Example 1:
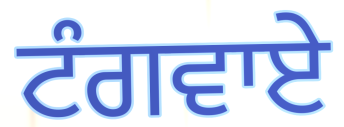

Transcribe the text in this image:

ਟੰਗਵਾਏ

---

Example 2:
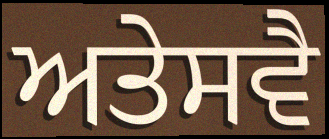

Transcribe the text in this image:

ਅਤੇਸਵੈ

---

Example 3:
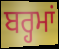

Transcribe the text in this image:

ਬਰ੍ਹਮਾਂ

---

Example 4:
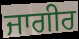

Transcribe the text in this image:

ਜਾਗੀਰ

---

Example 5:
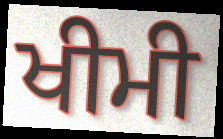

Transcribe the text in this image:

ਖੀਮੀ